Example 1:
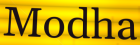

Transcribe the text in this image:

Modha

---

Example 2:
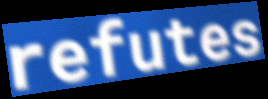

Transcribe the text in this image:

refutes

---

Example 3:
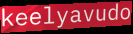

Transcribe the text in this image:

keelyavudo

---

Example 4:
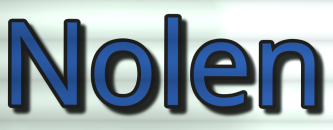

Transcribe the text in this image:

Nolen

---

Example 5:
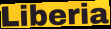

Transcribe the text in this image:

Liberia